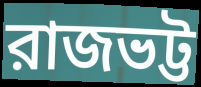
রাজভট্ট